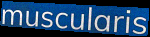
muscularis